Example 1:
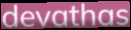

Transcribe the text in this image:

devathas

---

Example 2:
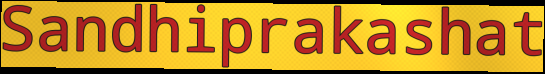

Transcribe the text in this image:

Sandhiprakashat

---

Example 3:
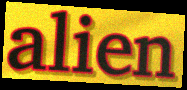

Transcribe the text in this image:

alien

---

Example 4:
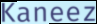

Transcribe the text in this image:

Kaneez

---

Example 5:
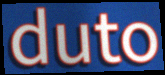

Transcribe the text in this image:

duto